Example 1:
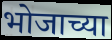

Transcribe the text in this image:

भोजाच्या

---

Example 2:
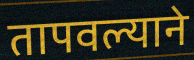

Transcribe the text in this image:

तापवल्याने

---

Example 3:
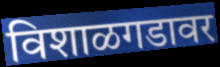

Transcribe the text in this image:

विशाळगडावर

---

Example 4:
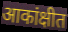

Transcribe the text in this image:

आकांक्षीत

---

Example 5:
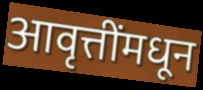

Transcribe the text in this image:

आवृत्तींमधून